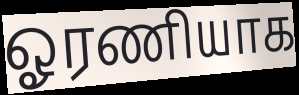
ஓரணியாக